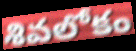
శివలోకం